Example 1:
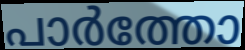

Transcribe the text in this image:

പാർത്തോ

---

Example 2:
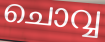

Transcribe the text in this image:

ചൊവ്വ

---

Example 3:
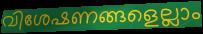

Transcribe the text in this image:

വിശേഷണങ്ങളെല്ലാം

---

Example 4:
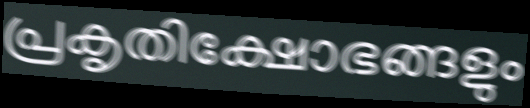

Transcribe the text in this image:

പ്രകൃതിക്ഷോഭങ്ങളും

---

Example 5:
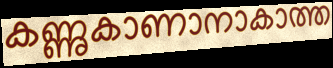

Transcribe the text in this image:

കണ്ണുകാണാനാകാത്ത